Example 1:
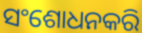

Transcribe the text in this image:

ସଂଶୋଧନକରି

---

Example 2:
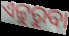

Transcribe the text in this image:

ଏଟ୍ଟୁରୁବା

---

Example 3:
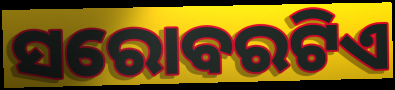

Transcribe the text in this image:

ସରୋବରଟିଏ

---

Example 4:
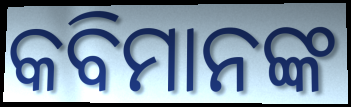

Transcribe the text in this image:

କବିମାନଙ୍କ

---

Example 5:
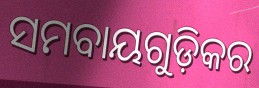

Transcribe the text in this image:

ସମବାୟଗୁଡ଼ିକର